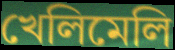
খেলিমেলি